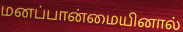
மனப்பான்மையினால்